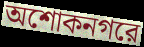
অশোকনগরে